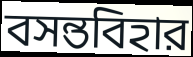
বসন্তবিহার